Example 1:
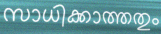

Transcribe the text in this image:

സാധിക്കാത്തതും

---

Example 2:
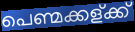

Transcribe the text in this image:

പെണ്മക്കള്ക്ക്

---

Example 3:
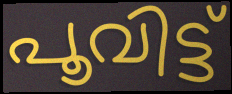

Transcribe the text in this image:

പൂവിട്ട്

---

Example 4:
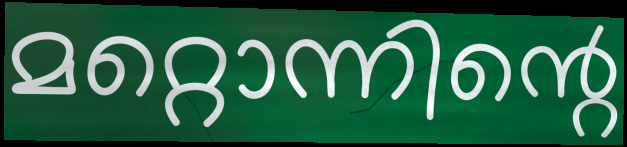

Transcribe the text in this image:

മറ്റൊന്നിന്റെ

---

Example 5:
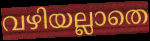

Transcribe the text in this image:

വഴിയല്ലാതെ